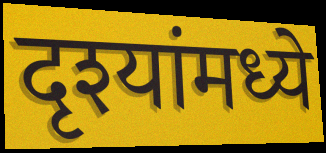
दृश्यांमध्ये